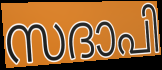
സദാപി